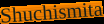
Shuchismita